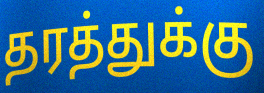
தரத்துக்கு